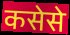
कसेसे